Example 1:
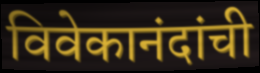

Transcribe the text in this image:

विवेकानंदांची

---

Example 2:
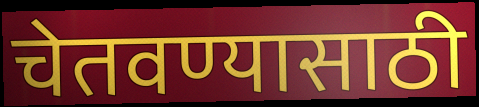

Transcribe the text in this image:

चेतवण्यासाठी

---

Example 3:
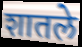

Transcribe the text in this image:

शातले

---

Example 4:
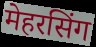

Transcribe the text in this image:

मेहरसिंग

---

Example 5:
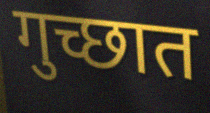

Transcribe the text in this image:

गुच्छात